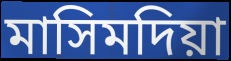
মাসিমদিয়া